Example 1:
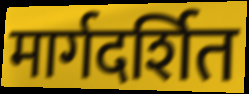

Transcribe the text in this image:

मार्गदर्शित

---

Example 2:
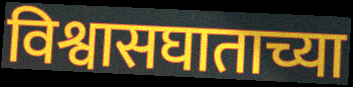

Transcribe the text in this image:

विश्वासघाताच्या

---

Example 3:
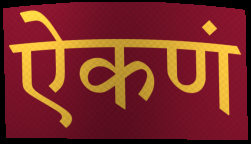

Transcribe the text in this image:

ऐकणं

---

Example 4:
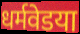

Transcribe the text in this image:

धर्मवेडया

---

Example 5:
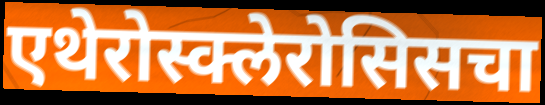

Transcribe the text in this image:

एथेरोस्क्लेरोसिसचा